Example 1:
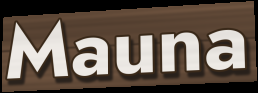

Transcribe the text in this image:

Mauna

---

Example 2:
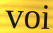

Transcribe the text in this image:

voi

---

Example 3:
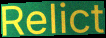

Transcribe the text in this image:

Relict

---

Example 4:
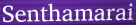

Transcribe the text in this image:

Senthamarai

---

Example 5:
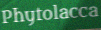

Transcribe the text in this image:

Phytolacca